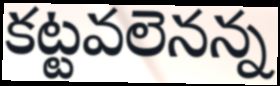
కట్టవలెనన్న